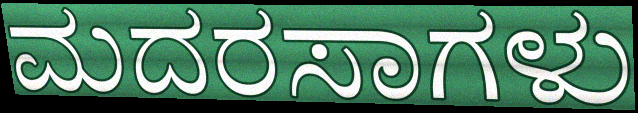
ಮದರಸಾಗಳು